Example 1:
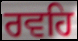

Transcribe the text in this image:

ਰਵਹਿ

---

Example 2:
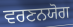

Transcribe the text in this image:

ਵਰਣਨਯੋਗ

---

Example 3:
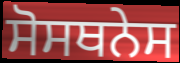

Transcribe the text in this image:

ਸੋਸਥਨੇਸ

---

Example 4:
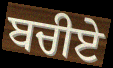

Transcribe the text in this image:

ਬਚੀਏ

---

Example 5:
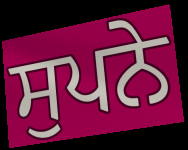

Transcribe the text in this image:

ਸੁਪਨੇ